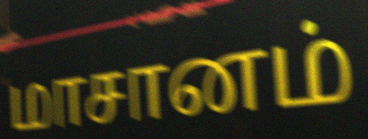
மாசானம்